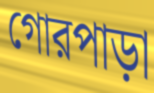
গোরপাড়া